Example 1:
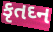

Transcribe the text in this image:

કૃતઘ્ન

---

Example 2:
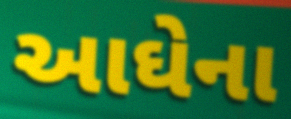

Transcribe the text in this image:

આઘેના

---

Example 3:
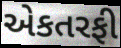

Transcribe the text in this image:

એકતરફી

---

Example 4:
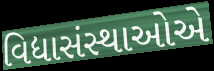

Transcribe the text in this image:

વિદ્યાસંસ્થાઓએ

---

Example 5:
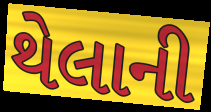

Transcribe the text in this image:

થેલાની